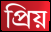
প্রিয়